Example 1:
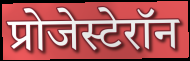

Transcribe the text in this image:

प्रोजेस्टेरॉन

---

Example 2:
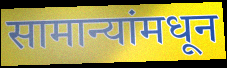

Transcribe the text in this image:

सामान्यांमधून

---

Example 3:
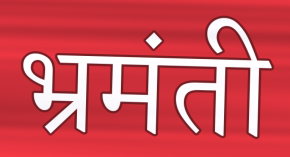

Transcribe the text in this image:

भ्रमंती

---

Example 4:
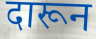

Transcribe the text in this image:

दारून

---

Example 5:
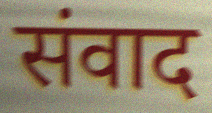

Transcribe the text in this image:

संवाद